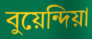
বুয়েন্দিয়া